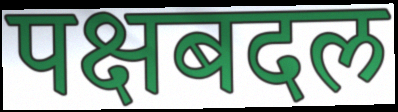
पक्षबदल